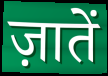
ज़ातें